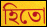
হিতো